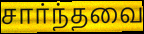
சார்ந்தவை